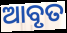
ଆବୃତ